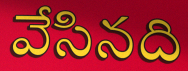
వేసినది